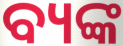
ବ୍ୟଙ୍କ